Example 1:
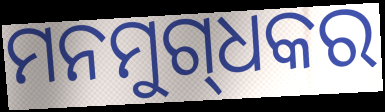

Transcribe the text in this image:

ମନମୁଗ୍‌ଧକର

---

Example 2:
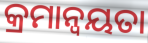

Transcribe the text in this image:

କ୍ରମାନ୍ବୟତା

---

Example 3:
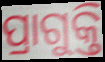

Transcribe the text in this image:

ପ୍ରାଗୁକ୍ତି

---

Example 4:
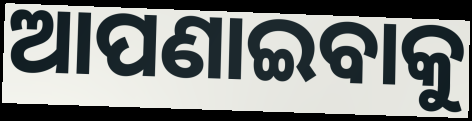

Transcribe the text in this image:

ଆପଣାଇବାକୁ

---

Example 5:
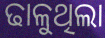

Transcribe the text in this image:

ଢାଳୁଥିଲା